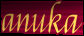
anuka